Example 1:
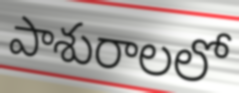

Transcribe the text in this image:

పాశురాలలో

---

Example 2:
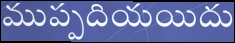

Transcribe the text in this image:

ముప్పదియయిదు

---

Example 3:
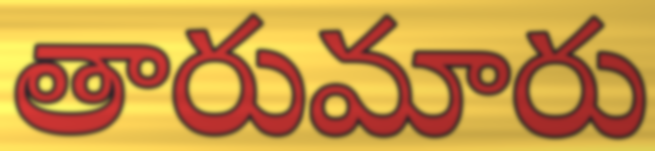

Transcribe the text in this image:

తారుమారు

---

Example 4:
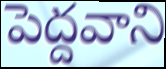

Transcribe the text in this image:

పెద్దవాని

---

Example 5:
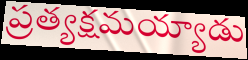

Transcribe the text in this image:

ప్రత్యక్షమయ్యాడు